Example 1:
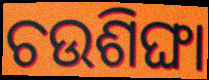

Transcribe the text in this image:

ଚଉଶିଙ୍ଘା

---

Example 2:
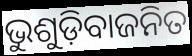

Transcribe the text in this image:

ଭୁଶୁଡ଼ିବାଜନିତ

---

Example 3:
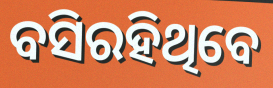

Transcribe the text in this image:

ବସିରହିଥିବେ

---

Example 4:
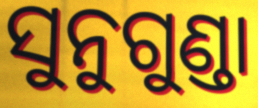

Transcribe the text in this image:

ସୁନୁଗୁଣ୍ଡା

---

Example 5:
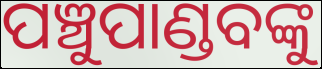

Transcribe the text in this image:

ପଞ୍ଚୁପାଣ୍ଡବଙ୍କୁ